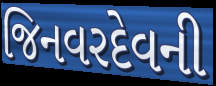
જિનવરદેવની